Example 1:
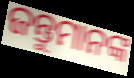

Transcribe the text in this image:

ଜନ୍ତୁମାନଙ୍କ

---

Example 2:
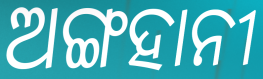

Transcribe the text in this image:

ଅଙ୍ଗହାନୀ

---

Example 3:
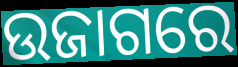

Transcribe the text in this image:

ଉଜାଗରେ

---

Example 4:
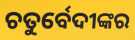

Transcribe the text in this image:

ଚତୁର୍ବେଦୀଙ୍କର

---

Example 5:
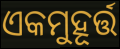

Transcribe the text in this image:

ଏକମୁହୂର୍ତ୍ତ